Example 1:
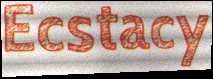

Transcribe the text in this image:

Ecstacy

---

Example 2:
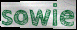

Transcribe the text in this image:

sowie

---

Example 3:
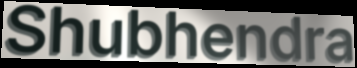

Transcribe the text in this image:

Shubhendra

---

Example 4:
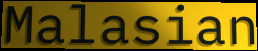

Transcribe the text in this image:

Malasian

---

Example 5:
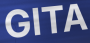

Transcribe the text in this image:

GITA